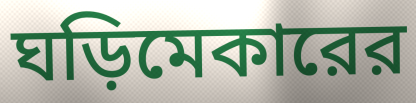
ঘড়িমেকারের